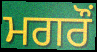
ਮਗਰੌਂ